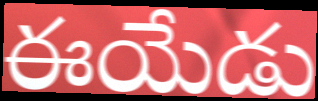
ఈయేడు